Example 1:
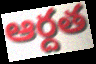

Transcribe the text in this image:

ఆర్దత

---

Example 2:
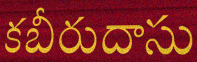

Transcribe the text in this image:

కబీరుదాసు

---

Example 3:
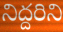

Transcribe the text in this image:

నిద్దరిని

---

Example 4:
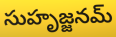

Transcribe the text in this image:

సుహృజ్జనమ్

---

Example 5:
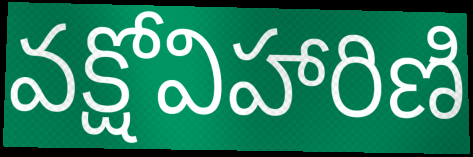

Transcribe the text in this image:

వక్షోవిహారిణి